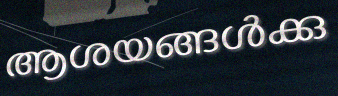
ആശയങ്ങൾക്കു